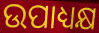
ଉପାଧ୍ୟକ୍ଷ